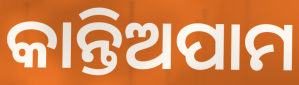
କାନ୍ତିଅପାମ